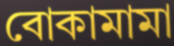
বোকামামা